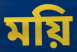
ময়ি